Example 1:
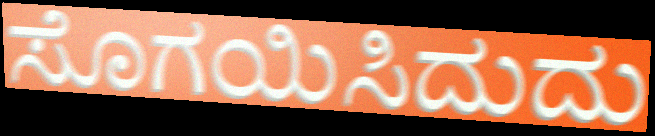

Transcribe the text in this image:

ಸೊಗಯಿಸಿದುದು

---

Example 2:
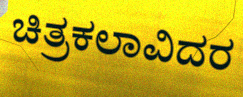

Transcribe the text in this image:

ಚಿತ್ರಕಲಾವಿದರ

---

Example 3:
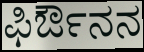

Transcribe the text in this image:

ಫಿರ್ಔನನ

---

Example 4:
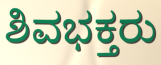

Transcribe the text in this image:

ಶಿವಭಕ್ತರು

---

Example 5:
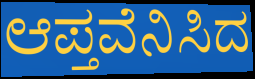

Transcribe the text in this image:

ಆಪ್ತವೆನಿಸಿದ